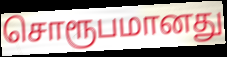
சொரூபமானது